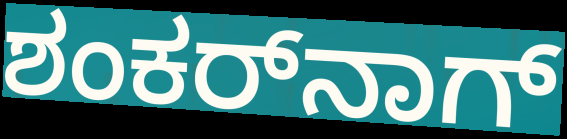
ಶಂಕರ್‌ನಾಗ್